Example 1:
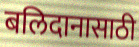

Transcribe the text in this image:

बलिदानासाठी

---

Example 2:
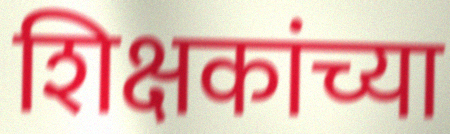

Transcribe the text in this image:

शिक्षकांच्‍या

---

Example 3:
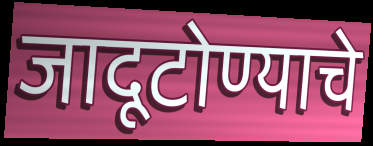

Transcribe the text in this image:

जादूटोण्याचे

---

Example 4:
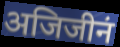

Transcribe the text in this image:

अजिजीनं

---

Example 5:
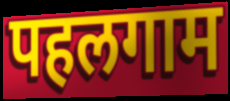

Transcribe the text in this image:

पहलगाम